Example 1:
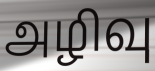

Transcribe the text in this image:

அழிவு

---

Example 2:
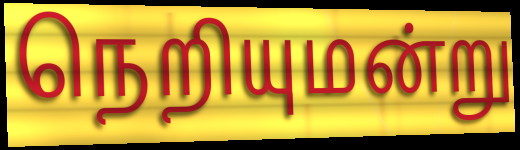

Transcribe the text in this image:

நெறியுமன்று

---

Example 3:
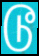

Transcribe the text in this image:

டூ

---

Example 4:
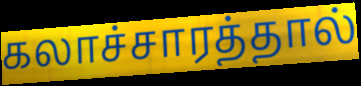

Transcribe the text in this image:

கலாச்சாரத்தால்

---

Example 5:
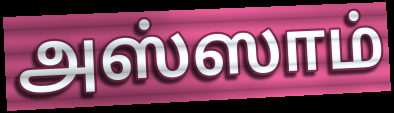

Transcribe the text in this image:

அஸ்ஸாம்